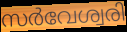
സർവേശ്വരി